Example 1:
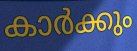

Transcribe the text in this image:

കാർക്കും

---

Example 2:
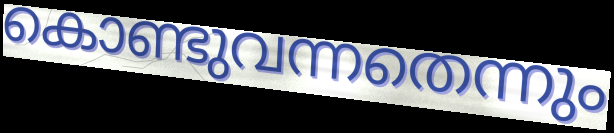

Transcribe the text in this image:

കൊണ്ടുവന്നതെന്നും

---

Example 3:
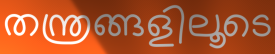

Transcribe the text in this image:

തന്ത്രങ്ങളിലൂടെ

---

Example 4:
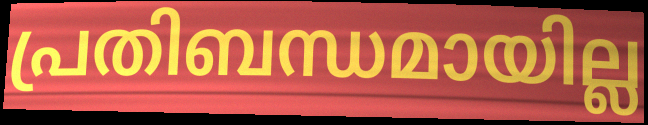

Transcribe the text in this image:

പ്രതിബന്ധമായില്ല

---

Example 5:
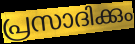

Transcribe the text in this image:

പ്രസാദിക്കും